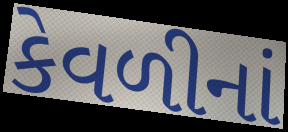
કેવળીનાં